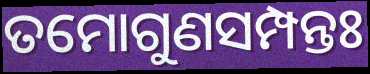
ତମୋଗୁଣସମ୍ପନ୍ତଃ